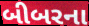
બીબરના